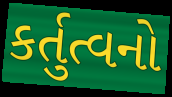
કર્તુત્વનો